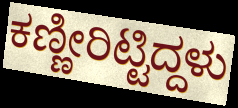
ಕಣ್ಣೀರಿಟ್ಟಿದ್ದಳು